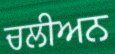
ਚਲੀਅਨ